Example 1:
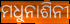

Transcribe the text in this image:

ମଧୁନାଶିନୀ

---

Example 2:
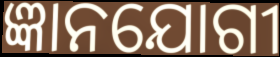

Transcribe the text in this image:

ଜ୍ଞାନଯୋଗୀ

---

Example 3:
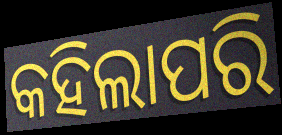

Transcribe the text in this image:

କହିଲାପରି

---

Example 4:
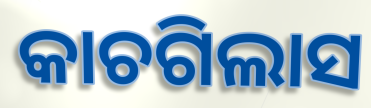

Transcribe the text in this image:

କାଚଗିଲାସ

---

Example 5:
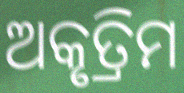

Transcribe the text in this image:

ଅକୃତ୍ରିମ